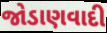
જોડાણવાદી